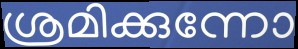
ശ്രമിക്കുന്നോ